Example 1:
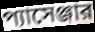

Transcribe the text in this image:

প্যাসেঞ্জার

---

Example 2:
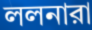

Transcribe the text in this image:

ললনারা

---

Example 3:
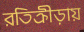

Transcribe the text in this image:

রতিক্রীড়ায়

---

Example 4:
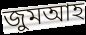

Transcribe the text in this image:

জুমআহ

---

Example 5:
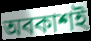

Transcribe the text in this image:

অবকাশই